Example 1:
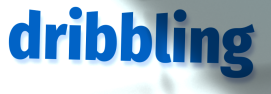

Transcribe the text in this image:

dribbling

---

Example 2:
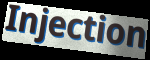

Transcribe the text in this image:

Injection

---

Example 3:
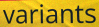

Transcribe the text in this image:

variants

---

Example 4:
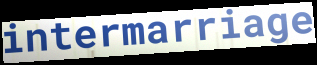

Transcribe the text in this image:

intermarriage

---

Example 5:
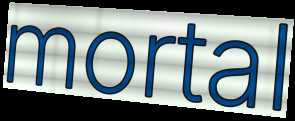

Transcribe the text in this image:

mortal